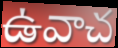
ఉవాచ